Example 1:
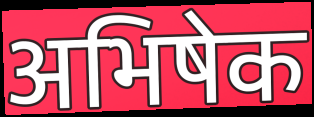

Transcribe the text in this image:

अभिषेक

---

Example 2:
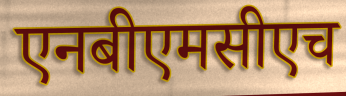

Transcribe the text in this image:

एनबीएमसीएच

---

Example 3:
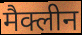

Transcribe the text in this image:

मैक्लीन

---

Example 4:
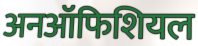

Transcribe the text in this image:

अनऑफिशियल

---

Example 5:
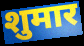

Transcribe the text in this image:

शुमार